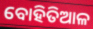
ବୋହିତିଆଳ